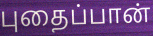
புதைப்பான்